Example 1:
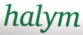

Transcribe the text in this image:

halym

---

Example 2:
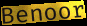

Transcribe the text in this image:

Benoor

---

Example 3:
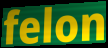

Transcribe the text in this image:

felon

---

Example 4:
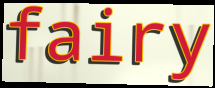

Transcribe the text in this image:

fairy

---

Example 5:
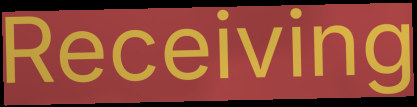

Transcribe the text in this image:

Receiving